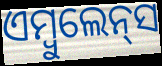
ଏମ୍ବୁଲେନ୍‌ସ